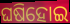
ଘଷିହୋଇ